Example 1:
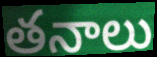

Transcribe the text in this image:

తనాలు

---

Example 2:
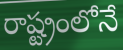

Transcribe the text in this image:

రాష్ట్రంలోనే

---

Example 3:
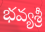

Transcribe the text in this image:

భవ్యశ్రీ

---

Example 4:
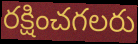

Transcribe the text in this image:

రక్షించగలరు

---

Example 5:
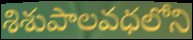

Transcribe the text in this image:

శిశుపాలవధలోని